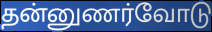
தன்னுணர்வோடு